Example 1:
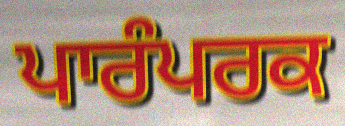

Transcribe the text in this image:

ਪਾਰੰਪਰਕ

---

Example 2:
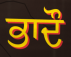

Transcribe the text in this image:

ਭਾਦੌ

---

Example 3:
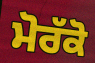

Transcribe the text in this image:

ਮੋਰੱਕੋ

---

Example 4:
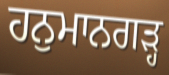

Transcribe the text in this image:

ਹਨੁਮਾਨਗੜ੍ਹ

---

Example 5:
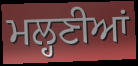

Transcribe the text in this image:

ਮਲ੍ਹਣੀਆਂ